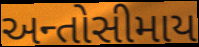
અન્તોસીમાય